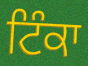
ਟਿੰਕਾ